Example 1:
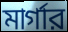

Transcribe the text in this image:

মার্গার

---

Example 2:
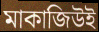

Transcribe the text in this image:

মাকাজিউই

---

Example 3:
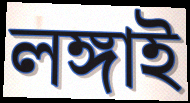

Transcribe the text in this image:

লঙ্গাই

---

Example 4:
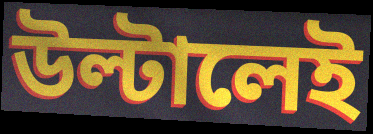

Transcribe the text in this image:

উল্টালেই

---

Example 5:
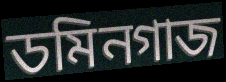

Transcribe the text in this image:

ডমিনগাজ